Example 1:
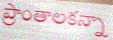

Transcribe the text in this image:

ప్రాంతాలకన్నా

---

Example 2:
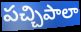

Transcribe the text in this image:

పచ్చిపాలా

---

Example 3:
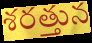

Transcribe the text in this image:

శరత్తున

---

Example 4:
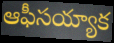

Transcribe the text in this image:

ఆఫీసయ్యాక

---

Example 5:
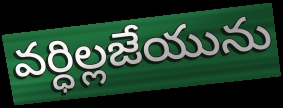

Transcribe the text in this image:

వర్ధిల్లజేయును